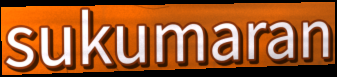
sukumaran